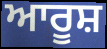
ਆਰੂਸ਼